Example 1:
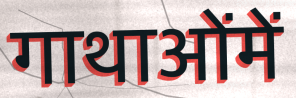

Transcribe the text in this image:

गाथाओंमें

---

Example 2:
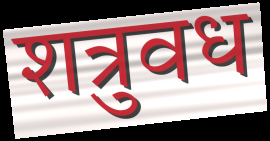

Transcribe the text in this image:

शत्रुवध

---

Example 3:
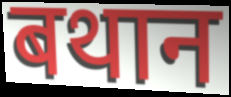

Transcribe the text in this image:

बथान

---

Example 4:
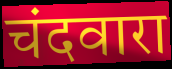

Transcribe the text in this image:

चंदवारा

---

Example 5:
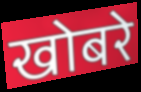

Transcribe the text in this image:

खोबरे